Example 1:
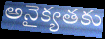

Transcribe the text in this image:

అనైక్యతకు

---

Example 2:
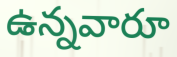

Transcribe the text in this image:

ఉన్నవారూ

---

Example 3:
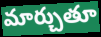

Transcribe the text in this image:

మార్చుతూ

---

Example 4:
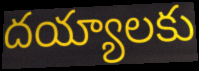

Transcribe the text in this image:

దయ్యాలకు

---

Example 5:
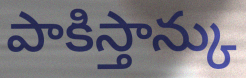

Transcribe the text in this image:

పాకిస్తాన్కు